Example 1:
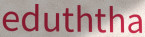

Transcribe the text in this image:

eduththa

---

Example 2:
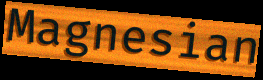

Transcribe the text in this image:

Magnesian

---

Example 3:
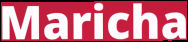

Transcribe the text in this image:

Maricha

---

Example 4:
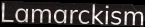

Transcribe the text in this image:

Lamarckism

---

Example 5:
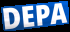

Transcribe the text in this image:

DEPA